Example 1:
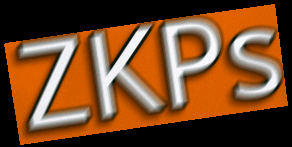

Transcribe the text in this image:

ZKPs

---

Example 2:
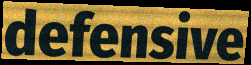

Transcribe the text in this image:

defensive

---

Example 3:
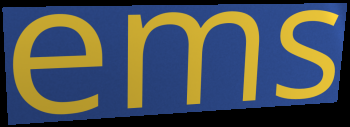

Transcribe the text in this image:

ems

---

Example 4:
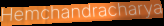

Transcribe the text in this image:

Hemchandracharya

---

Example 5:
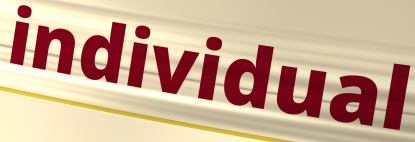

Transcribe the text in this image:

individual